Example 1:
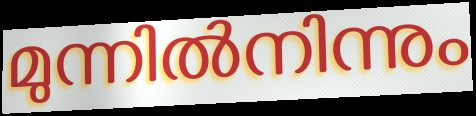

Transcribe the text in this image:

മുന്നിൽനിന്നും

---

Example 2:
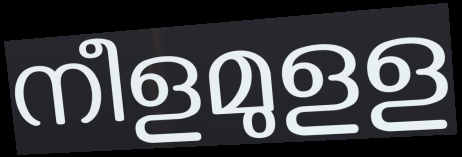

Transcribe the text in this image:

നീളമുളള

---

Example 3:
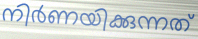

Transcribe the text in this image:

നിർണയിക്കുന്നത്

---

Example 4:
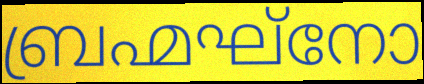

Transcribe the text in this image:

ബ്രഹ്മഘ്നോ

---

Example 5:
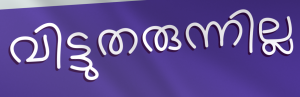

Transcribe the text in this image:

വിട്ടുതരുന്നില്ല